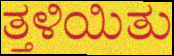
ತ್ತಳಿಯಿತು